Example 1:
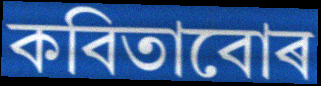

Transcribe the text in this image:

কবিতাবোৰ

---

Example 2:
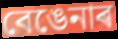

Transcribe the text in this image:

বেঙেনাৰ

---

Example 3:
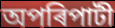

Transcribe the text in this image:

অপৰিপাটী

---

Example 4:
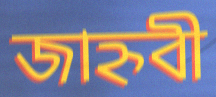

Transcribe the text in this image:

জাহ্নবী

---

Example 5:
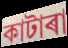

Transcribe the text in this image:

কাটাৰা